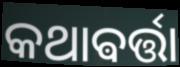
କଥାଵର୍ତ୍ତା